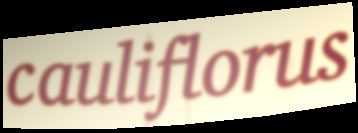
cauliflorus